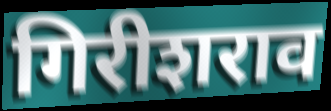
गिरीशराव